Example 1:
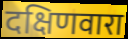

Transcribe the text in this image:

दक्षिणवारा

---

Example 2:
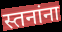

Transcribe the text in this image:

स्तनांना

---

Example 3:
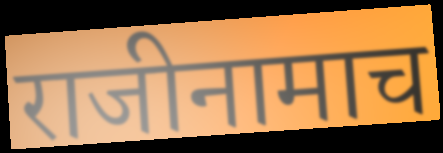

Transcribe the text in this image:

राजीनामाच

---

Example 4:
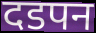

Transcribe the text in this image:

दडपन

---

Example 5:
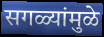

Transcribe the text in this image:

सगळ्यांमुळे